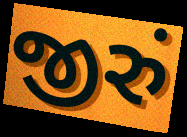
જીરું